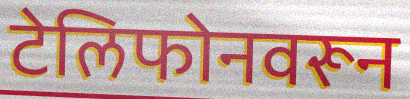
टेलिफोनवरून